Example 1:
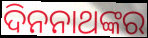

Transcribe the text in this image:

ଦିନନାଥଙ୍କର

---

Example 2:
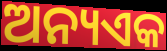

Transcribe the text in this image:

ଅନ୍ୟଏକ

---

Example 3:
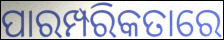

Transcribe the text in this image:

ପାରମ୍ପରିକତାରେ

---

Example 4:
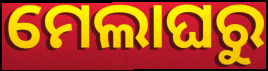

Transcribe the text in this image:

ମେଲାଘରୁ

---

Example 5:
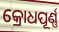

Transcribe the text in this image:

କ୍ରୋଧପୂର୍ଣ୍ଣ